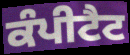
ਕੰਪੀਟੈਟ